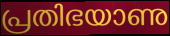
പ്രതിഭയാണു